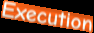
Execution